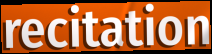
recitation